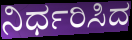
ನಿರ್ಧರಿಸಿದ